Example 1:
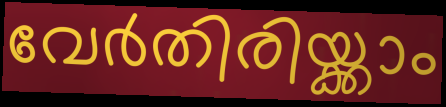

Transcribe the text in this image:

വേർതിരിയ്ക്കാം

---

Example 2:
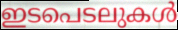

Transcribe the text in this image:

ഇടപെടലുകൾ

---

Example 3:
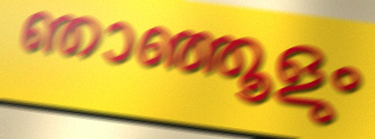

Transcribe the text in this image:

ഞാഞ്ഞൂളും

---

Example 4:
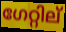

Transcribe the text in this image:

ഗേറ്റില്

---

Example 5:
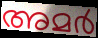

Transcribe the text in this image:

അമർ